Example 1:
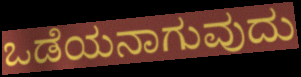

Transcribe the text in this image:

ಒಡೆಯನಾಗುವುದು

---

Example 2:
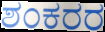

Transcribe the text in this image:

ಶಂಕರರ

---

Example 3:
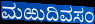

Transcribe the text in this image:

ಮಱುದಿವಸಂ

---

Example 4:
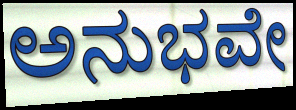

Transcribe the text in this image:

ಅನುಭವೇ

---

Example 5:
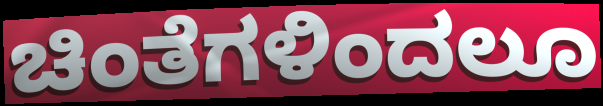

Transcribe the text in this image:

ಚಿಂತೆಗಳಿಂದಲೂ